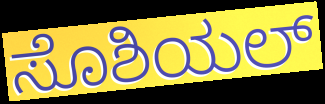
ಸೊಶಿಯಲ್